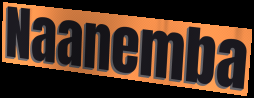
Naanemba